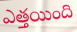
ఎత్తయింది